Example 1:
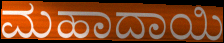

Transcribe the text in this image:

ಮಹಾದಾಯಿ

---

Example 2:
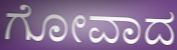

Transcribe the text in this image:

ಗೋವಾದ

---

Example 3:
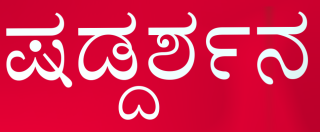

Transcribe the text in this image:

ಷಡ್ದರ್ಶನ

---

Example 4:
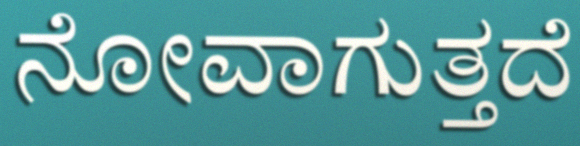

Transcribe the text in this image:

ನೋವಾಗುತ್ತದೆ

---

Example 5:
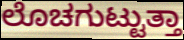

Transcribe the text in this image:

ಲೊಚಗುಟ್ಟುತ್ತಾ